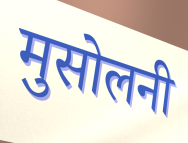
मुसोलनी